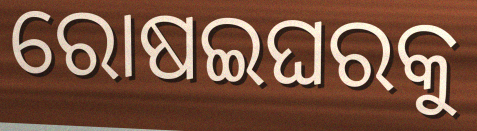
ରୋଷଇଘରକୁ